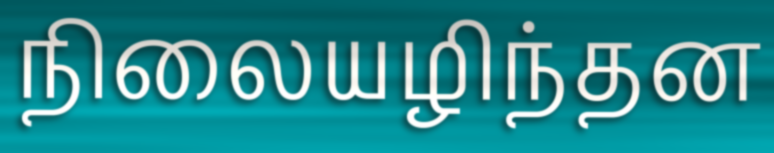
நிலையழிந்தன